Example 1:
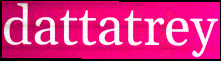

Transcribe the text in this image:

dattatrey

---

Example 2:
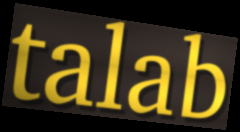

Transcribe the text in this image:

talab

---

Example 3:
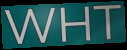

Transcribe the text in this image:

WHT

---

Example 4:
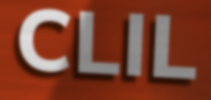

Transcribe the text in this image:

CLIL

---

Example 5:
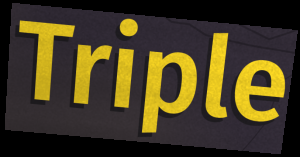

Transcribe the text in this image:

Triple